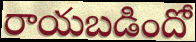
రాయబడిందో